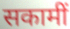
सकामीं